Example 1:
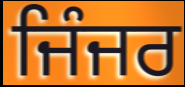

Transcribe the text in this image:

ਜਿੰਜਰ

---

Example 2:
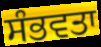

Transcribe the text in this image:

ਸੰਭਵਤਾ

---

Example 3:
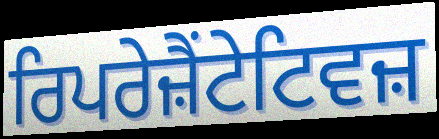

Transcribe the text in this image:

ਰਿਪਰੇਜ਼ੈਂਟੇਟਿਵਜ਼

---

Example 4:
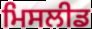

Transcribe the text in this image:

ਮਿਸਲੀਡ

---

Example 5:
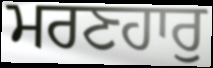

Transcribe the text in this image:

ਮਰਣਹਾਰੁ